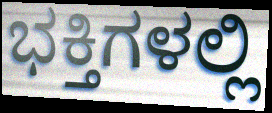
ಭಕ್ತಿಗಳಲ್ಲಿ